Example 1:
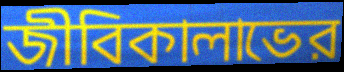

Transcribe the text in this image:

জীবিকালাভের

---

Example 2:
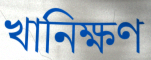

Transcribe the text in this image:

খানিক্ষণ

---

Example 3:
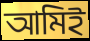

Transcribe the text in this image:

আমিই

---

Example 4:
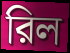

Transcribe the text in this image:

রিল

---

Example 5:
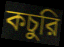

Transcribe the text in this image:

কচুরি